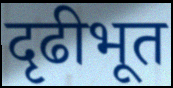
दृढीभूत